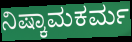
ನಿಷ್ಕಾಮಕರ್ಮ